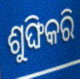
ଶୁଙ୍ଘିକରି